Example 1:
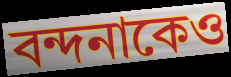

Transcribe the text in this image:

বন্দনাকেও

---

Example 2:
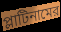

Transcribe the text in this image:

প্লাটিনামের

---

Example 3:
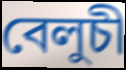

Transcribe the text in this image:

বেলুচী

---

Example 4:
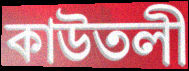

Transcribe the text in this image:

কাউতলী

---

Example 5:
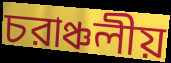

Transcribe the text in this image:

চরাঞ্চলীয়